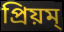
প্রিয়ম্